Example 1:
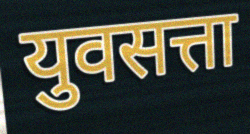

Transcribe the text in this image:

युवसत्ता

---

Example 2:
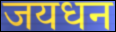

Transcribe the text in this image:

जयधन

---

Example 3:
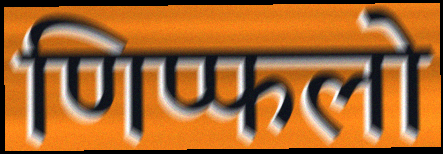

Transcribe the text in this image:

णिप्फलो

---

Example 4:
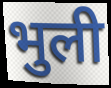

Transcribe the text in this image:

भुली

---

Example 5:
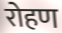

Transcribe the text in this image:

रोहण